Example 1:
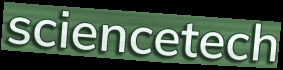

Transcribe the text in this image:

sciencetech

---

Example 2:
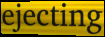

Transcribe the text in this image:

ejecting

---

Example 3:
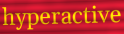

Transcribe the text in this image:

hyperactive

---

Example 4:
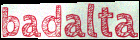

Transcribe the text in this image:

badalta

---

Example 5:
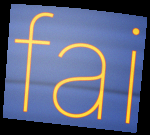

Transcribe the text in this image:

fai